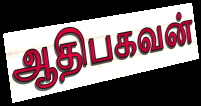
ஆதிபகவன்